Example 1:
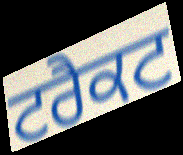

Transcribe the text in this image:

ਟਰੈਕਟ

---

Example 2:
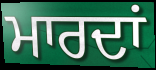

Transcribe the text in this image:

ਮਾਰਦਾਂ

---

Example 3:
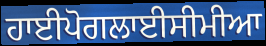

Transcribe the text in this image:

ਹਾਈਪੋਗਲਾਈਸੀਮੀਆ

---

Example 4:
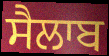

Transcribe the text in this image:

ਸੈਲਾਬ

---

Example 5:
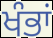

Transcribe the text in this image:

ਖੰਭਾਂ